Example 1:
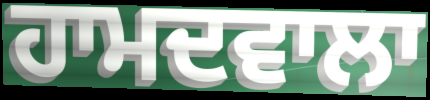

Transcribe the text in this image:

ਹਾਮਦਵਾਲਾ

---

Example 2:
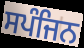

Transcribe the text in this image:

ਸਪੰਜਿਨ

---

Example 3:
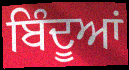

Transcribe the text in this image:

ਬਿੰਦੂਆਂ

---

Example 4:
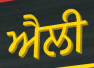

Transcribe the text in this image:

ਐਲੀ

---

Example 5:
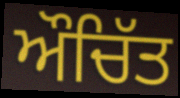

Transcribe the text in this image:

ਔਚਿੱਤ